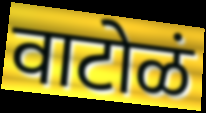
वाटोळं